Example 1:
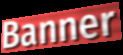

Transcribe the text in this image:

Banner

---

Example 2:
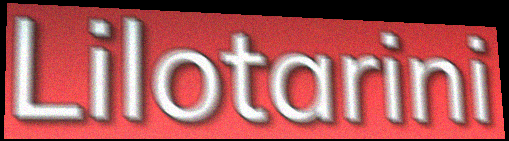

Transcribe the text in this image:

Lilotarini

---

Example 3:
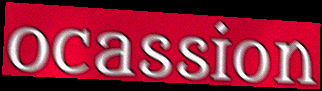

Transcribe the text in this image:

ocassion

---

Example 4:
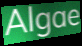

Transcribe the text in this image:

Algae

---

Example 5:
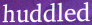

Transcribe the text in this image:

huddled